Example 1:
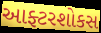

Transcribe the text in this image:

આફ્ટરશોકસ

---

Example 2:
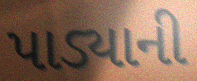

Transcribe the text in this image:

પાડ્યાની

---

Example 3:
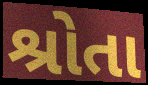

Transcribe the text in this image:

શ્રોતા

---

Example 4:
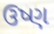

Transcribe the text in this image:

ઉષ્ણ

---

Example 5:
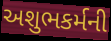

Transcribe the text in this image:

અશુભકર્મની